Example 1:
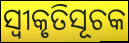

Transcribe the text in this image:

ସ୍ଵୀକୃତିସୂଚକ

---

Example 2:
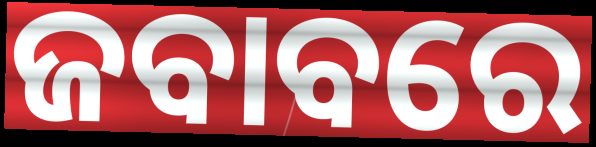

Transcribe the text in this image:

ଜବାବରେ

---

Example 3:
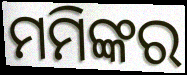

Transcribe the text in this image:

ମମିଙ୍କର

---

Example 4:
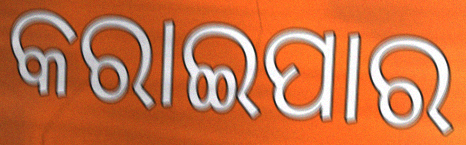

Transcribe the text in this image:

କରାଇପାର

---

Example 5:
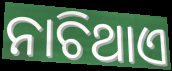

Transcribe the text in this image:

ନାଚିଥାଏ